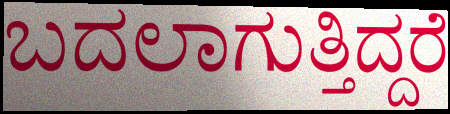
ಬದಲಾಗುತ್ತಿದ್ದರೆ